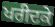
ਖਰੀਦਕੇ